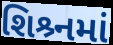
શિશ્ર્નમાં